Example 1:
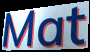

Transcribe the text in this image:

Mat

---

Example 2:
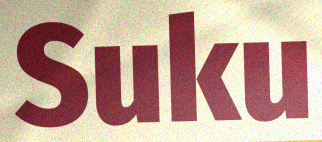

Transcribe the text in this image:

Suku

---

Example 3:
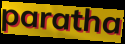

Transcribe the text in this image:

paratha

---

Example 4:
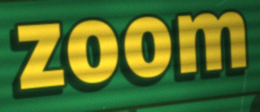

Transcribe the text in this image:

zoom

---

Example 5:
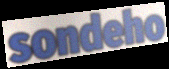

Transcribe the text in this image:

sondeho